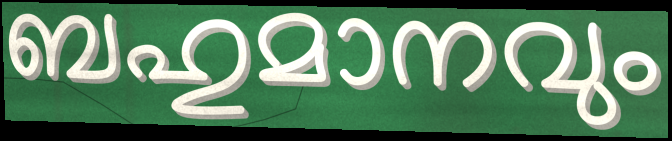
ബഹുമാനവും